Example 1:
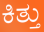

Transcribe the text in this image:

ಕಿತ್ತು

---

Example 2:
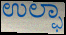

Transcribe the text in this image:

ಉಲ್ಫಾ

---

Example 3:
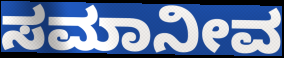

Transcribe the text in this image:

ಸಮಾನೀವ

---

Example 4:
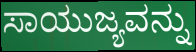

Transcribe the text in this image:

ಸಾಯುಜ್ಯವನ್ನು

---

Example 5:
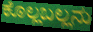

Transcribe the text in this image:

ಕೊಲ್ಲಬಲ್ಲನು